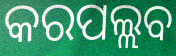
କରପଲ୍ଲବ